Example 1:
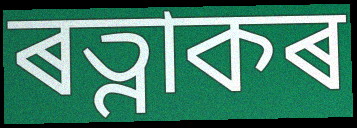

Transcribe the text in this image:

ৰত্নাকৰ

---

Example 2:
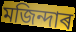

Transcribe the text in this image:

মজিন্দাৰ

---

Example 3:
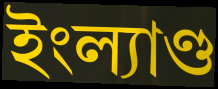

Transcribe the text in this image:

ইংল্যাণ্ড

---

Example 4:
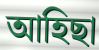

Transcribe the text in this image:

আহিছা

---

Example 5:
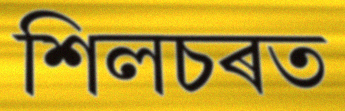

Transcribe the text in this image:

শিলচৰত